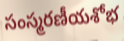
సంస్మరణీయశోభ